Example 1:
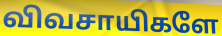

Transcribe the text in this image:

விவசாயிகளே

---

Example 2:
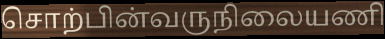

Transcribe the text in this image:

சொற்பின்வருநிலையணி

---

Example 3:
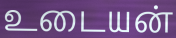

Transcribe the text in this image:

உடையன்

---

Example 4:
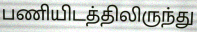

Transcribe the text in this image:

பணியிடத்திலிருந்து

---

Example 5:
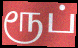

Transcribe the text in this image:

ரூப்